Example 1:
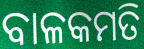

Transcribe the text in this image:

ବାଳକମତି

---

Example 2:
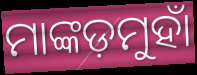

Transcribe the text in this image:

ମାଙ୍କଡ଼ମୁହାଁ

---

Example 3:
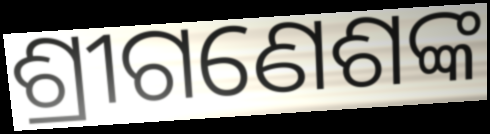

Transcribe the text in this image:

ଶ୍ରୀଗଣେଶଙ୍କ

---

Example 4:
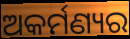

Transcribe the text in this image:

ଅକର୍ମଣ୍ୟର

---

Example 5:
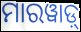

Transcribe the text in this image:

ମାରୱାଡ଼୍